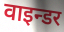
वाइन्डर